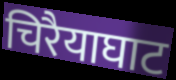
चिरैयाघाट